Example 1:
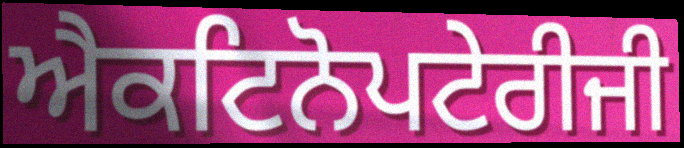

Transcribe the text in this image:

ਐਕਟਿਨੋਪਟੇਰੀਜੀ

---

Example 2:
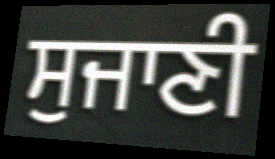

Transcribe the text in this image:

ਸੁਜਾਣੀ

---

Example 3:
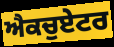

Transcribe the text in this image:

ਐਕਚੁਏਟਰ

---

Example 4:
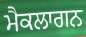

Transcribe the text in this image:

ਮੈਕਲਾਗਨ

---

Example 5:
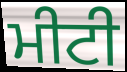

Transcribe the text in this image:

ਮੀਟੀ